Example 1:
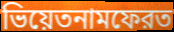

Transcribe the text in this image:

ভিয়েতনামফেরত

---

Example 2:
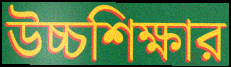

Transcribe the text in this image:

উচ্চশিক্ষার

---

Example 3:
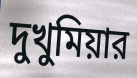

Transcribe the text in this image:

দুখুমিয়ার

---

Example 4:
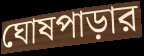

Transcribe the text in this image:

ঘোষপাড়ার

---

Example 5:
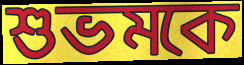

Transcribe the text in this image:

শুভমকে